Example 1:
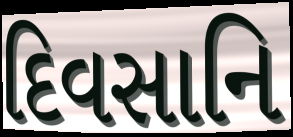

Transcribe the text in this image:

દિવસાનિ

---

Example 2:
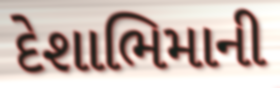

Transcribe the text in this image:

દેશાભિમાની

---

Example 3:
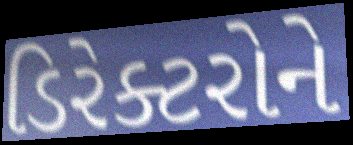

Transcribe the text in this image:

ડિરેક્ટરોને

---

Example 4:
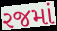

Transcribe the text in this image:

રજમાં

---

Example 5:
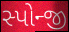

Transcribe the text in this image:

સ્પોન્જી